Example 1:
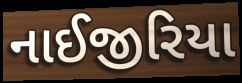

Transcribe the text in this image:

નાઈજીરિયા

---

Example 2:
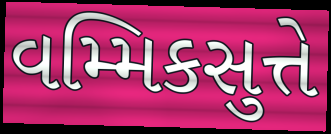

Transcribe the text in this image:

વમ્મિકસુત્તે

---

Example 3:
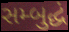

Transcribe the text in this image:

સમ્બુદ્ધં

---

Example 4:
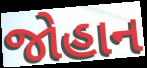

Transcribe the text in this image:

જોહાન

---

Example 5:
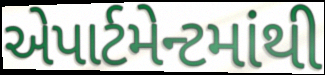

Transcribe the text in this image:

એપાર્ટમેન્ટમાંથી